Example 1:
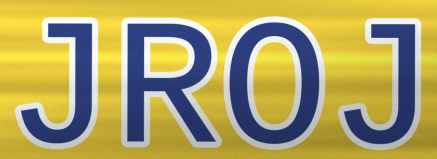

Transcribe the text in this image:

JROJ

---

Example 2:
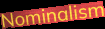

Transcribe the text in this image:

Nominalism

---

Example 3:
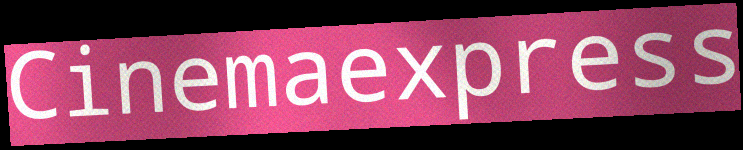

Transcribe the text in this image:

Cinemaexpress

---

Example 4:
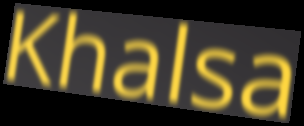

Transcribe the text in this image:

Khalsa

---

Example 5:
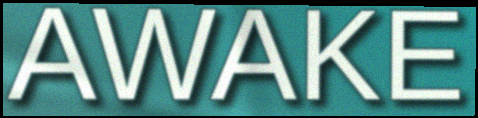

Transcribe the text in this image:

AWAKE